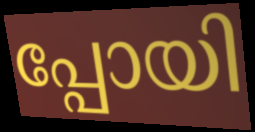
പ്പോയി